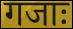
गजाः